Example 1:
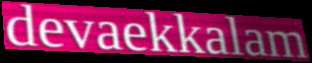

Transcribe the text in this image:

devaekkalam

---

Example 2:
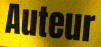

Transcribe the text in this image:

Auteur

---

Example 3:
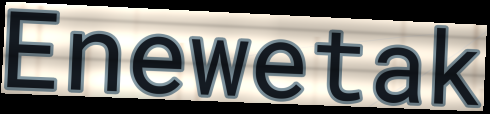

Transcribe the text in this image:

Enewetak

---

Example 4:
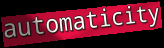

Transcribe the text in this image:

automaticity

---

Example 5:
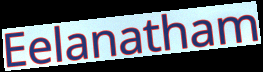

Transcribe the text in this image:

Eelanatham